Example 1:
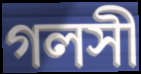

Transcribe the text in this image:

গলসী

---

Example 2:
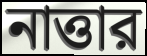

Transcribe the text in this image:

নাত্তার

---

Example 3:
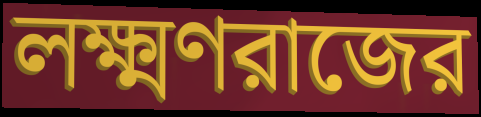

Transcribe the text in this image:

লক্ষ্মণরাজের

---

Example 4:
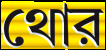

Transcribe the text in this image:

থোর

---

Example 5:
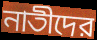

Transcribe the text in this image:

নাতীদের